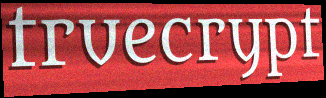
truecrypt